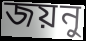
জয়নু